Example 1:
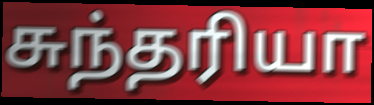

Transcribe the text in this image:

சுந்தரியா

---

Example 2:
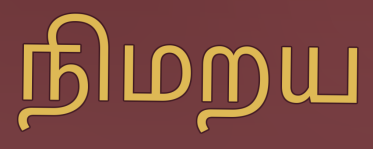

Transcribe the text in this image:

நிமறய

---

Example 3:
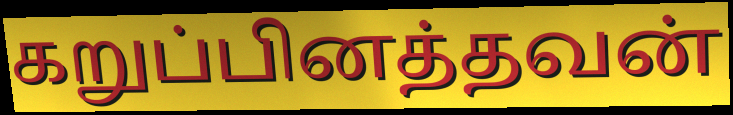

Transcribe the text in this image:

கறுப்பினத்தவன்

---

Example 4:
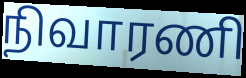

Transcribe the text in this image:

நிவாரணி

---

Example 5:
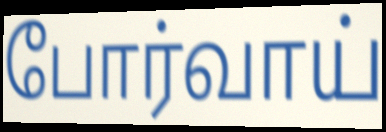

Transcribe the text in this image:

போர்வாய்